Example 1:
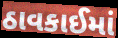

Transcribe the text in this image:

ઠાવકાઈમાં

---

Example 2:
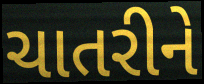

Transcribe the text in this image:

ચાતરીને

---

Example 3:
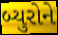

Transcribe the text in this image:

બ્યુરોને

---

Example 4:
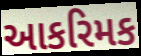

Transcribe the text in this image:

આકરિમક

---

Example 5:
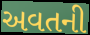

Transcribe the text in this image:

અવતની